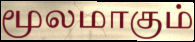
மூலமாகும்